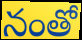
నంతో